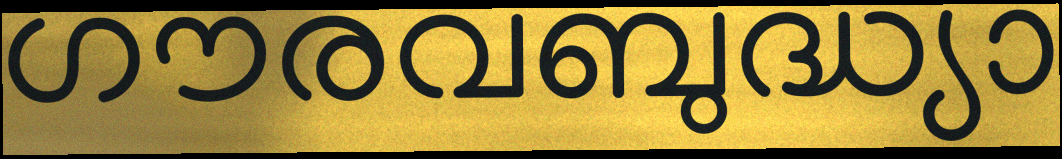
ഗൗരവബുദ്ധ്യാ